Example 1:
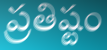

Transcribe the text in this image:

ప్రతిష్టం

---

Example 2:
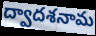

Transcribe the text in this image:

ద్వాదశనామ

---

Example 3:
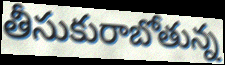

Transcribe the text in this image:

తీసుకురాబోతున్న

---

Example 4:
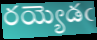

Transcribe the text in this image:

రయ్యెడఁ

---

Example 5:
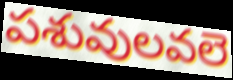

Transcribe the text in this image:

పశువులవలె